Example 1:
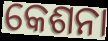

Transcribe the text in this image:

କେଶନା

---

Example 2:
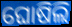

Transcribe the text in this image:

ଘୋଷିଲି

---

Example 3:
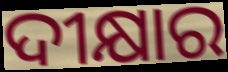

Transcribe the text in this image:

ଦୀକ୍ଷାର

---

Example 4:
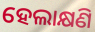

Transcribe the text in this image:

ହେଲାକ୍ଷଣି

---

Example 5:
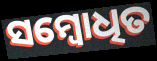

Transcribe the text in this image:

ସମ୍ବୋଧିତ